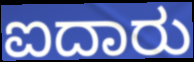
ಐದಾರು